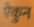
ऐकुन